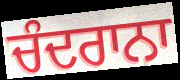
ਚੰਦਰਾਨਾ